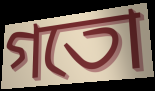
গতো